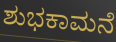
ಶುಭಕಾಮನೆ